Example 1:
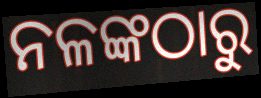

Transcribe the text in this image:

ନଳଙ୍କଠାରୁ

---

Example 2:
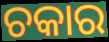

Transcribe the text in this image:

ଚକାର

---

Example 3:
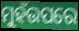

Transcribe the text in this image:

ମୁହଁଉପରେ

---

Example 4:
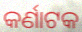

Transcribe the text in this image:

କର୍ଣାଟକ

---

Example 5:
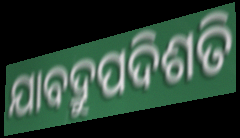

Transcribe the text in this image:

ଯାବଦ୍ରୁପଦିଶତି